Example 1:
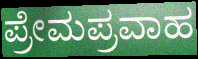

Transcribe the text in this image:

ಪ್ರೇಮಪ್ರವಾಹ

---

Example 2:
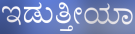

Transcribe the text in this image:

ಇಡುತ್ತೀಯಾ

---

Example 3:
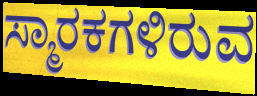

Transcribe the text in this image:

ಸ್ಮಾರಕಗಳಿರುವ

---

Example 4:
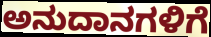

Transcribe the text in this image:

ಅನುದಾನಗಳಿಗೆ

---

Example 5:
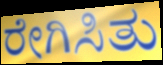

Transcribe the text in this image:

ರೇಗಿಸಿತು